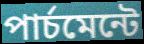
পার্চমেন্টে